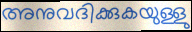
അനുവദിക്കുകയുള്ളു